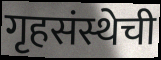
गृहसंस्थेची